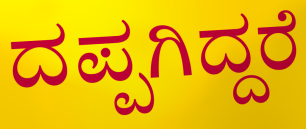
ದಪ್ಪಗಿದ್ದರೆ